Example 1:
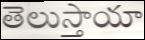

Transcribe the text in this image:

తెలుస్తాయా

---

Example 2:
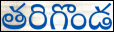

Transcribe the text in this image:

తరిగొండ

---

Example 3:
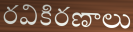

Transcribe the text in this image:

రవికిరణాలు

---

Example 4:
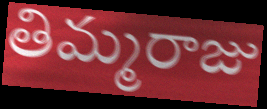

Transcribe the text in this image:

తిమ్మరాజు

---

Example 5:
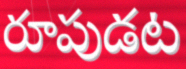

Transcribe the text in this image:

రూపుడట